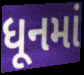
ધૂનમાં